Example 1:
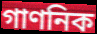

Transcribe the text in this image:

গাণনিক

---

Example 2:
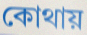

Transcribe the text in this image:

কোথায়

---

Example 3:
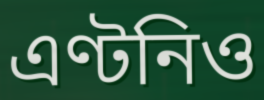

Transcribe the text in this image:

এণ্টনিও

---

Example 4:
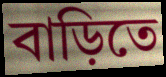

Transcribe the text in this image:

বাড়িতে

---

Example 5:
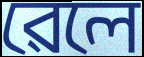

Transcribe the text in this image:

ৱেলে